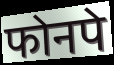
फोनपे